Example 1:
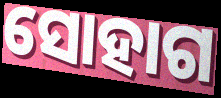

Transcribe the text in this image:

ସୋହାଗ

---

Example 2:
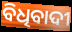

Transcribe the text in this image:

ବିଧିବାଦୀ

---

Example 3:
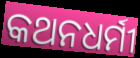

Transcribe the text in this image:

କଥନଧର୍ମୀ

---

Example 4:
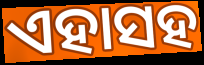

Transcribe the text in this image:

ଏହାସହ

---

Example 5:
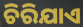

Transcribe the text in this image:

ଚିରିଯାଏ